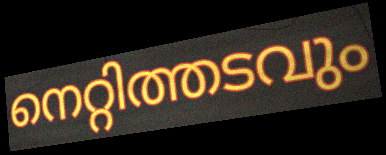
നെറ്റിത്തടവും